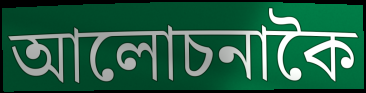
আলোচনাকৈ